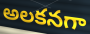
అలకనగా